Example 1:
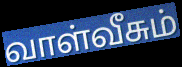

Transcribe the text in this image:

வாள்வீசும்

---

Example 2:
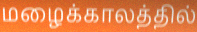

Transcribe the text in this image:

மழைக்காலத்தில்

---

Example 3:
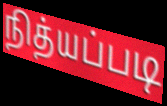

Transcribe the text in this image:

நித்யப்படி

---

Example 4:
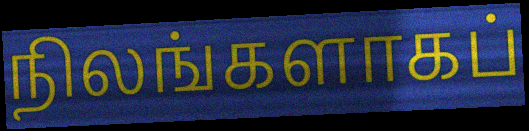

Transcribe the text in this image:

நிலங்களாகப்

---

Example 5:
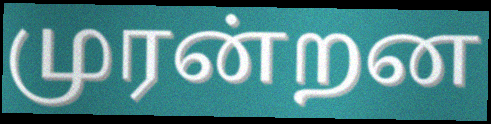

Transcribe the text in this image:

முரன்றன